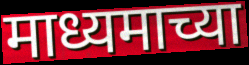
माध्यमाच्या